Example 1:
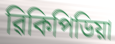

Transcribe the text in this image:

ৱিকিপিডিয়া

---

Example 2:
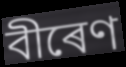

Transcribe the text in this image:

বীৰেণ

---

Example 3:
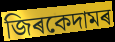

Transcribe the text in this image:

জিৰকেদামৰ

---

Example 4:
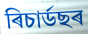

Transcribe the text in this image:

ৰিচাৰ্ডছৰ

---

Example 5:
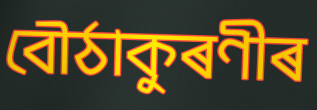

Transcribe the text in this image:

বৌঠাকুৰণীৰ